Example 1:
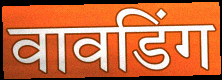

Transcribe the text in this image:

वावडिंग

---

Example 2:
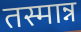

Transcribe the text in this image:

तस्मान्न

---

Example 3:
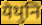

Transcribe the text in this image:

येथुनि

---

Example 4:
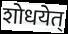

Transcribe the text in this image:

शोधयेत्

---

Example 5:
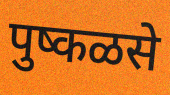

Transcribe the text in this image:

पुष्कळसे